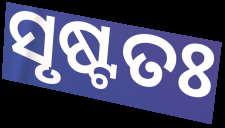
ସୃଷ୍ଟତଃ